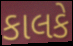
કાલકે